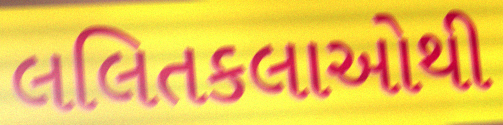
લલિતકલાઓથી